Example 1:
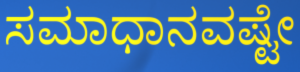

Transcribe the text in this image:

ಸಮಾಧಾನವಷ್ಟೇ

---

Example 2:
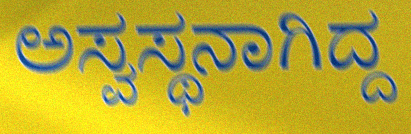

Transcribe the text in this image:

ಅಸ್ವಸ್ಥನಾಗಿದ್ದ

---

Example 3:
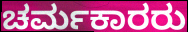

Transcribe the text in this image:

ಚರ್ಮಕಾರರು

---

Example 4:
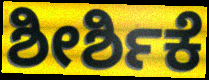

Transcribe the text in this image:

ಶೀರ್ಶಿಕೆ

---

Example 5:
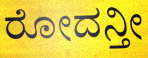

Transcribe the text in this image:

ರೋದನ್ತೀ